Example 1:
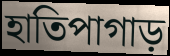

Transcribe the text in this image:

হাতিপাগাড়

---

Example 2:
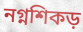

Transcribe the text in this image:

নগ্নশিকড়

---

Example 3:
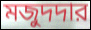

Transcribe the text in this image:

মজুদদার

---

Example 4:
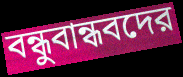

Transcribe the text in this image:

বন্ধুবান্ধবদের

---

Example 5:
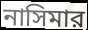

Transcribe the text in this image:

নাসিমার